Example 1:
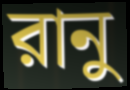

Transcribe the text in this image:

রানু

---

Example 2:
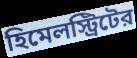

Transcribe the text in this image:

হিমেলস্ট্রিটের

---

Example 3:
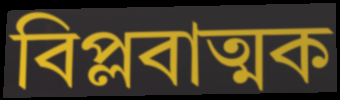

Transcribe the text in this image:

বিপ্লবাত্মক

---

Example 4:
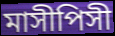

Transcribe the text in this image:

মাসীপিসী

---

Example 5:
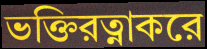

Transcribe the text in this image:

ভক্তিরত্নাকরে